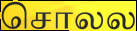
சொலல